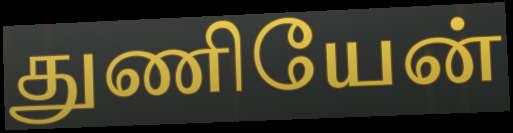
துணியேன்